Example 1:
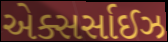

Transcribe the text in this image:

એક્સર્સાઈઝ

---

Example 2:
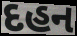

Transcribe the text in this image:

દહન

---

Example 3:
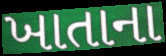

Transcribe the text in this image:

ખાતાના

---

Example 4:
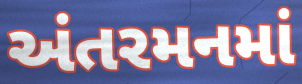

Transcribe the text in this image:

અંતરમનમાં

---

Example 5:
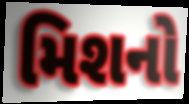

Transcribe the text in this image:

મિશનો